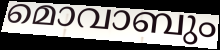
മൊവാബും